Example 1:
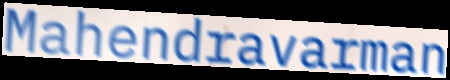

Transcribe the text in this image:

Mahendravarman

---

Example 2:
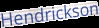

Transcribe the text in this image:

Hendrickson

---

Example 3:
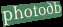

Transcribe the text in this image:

photodb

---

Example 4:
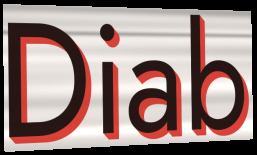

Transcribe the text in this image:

Diab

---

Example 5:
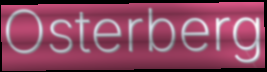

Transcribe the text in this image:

Osterberg